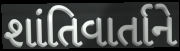
શાંતિવાર્તાને